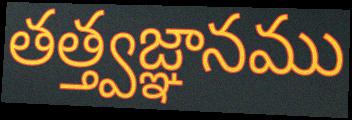
తత్త్వజ్ఞానము